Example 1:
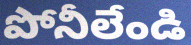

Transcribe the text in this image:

పోనీలేండి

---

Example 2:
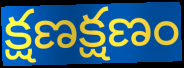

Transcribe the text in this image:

క్షణక్షణం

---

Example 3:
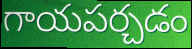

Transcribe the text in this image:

గాయపర్చడం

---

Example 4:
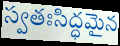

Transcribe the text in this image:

స్వతఃసిద్ధమైన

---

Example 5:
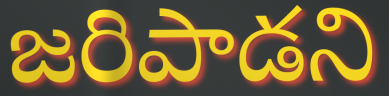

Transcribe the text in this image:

జరిపాడని